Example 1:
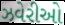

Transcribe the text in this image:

ઝવેરીઓ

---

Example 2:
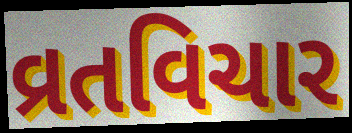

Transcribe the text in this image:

વ્રતવિચાર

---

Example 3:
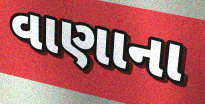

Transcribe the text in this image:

વાણાના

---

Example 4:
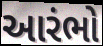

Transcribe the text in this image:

આરંભો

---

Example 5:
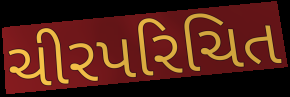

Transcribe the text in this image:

ચીરપરિચિત